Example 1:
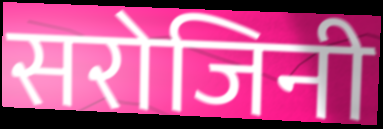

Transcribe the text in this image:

सरोजिनी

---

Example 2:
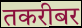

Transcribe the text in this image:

तकरीबर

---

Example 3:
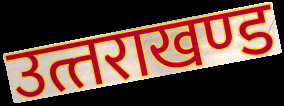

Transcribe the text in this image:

उत्‍तराखण्‍ड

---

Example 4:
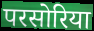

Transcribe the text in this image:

परसोरिया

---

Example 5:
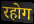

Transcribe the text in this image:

रहोग